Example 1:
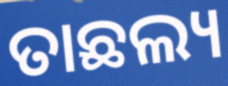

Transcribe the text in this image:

ତାଛଲ୍ୟ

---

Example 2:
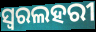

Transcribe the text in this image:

ସ୍ୱରଲହରୀ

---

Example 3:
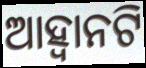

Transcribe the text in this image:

ଆହ୍ଵାନଟି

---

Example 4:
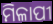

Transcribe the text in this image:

ମିଳାପୀ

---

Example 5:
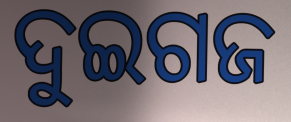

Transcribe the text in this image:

ଦୁଇଗଜ